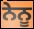
ਨੇਨੂ